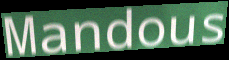
Mandous